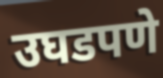
उघडपणे